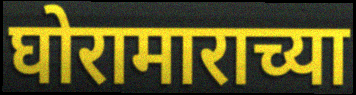
घोरामाराच्या